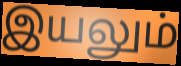
இயலும்